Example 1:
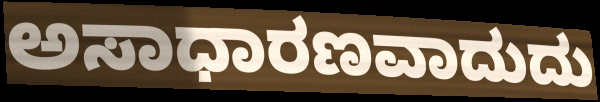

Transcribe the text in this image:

ಅಸಾಧಾರಣವಾದುದು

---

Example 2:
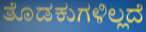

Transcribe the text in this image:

ತೊಡಕುಗಳಿಲ್ಲದೆ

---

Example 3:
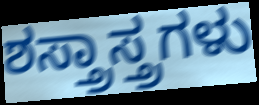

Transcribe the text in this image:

ಶಸ್ತ್ರಾಸ್ತ್ರಗಳು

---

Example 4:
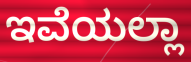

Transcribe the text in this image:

ಇವೆಯಲ್ಲಾ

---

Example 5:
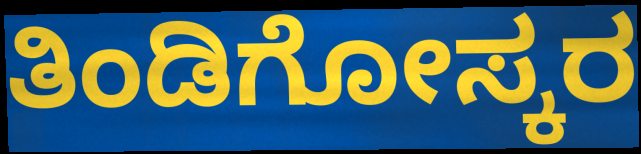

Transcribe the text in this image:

ತಿಂಡಿಗೋಸ್ಕರ